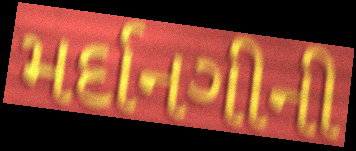
મર્દાનગીની